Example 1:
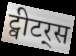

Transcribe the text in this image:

ट्वीटर्स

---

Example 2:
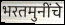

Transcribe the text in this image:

भरतमुनींचे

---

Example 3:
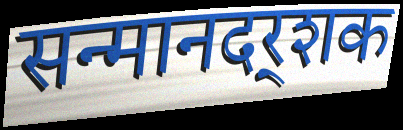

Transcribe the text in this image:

सन्मानदर्शक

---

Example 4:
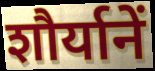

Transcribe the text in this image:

शौर्यानें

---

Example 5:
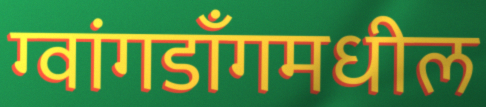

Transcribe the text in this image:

ग्वांगडाँगमधील